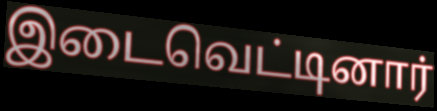
இடைவெட்டினார்